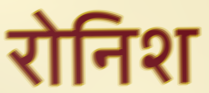
रोनिश